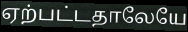
ஏற்பட்டதாலேயே